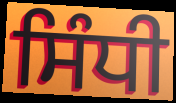
ਸਿੰਧੀ